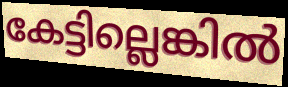
കേട്ടില്ലെങ്കിൽ